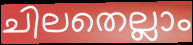
ചിലതെല്ലാം